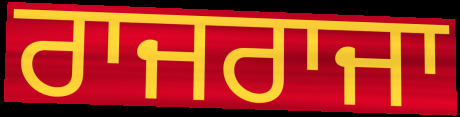
ਰਾਜਰਾਜਾ